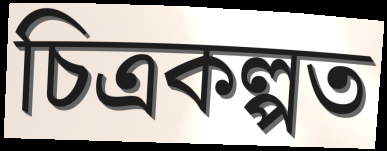
চিত্ৰকল্পত